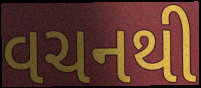
વચનથી